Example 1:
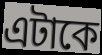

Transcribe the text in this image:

এটাকে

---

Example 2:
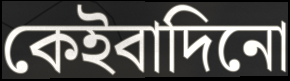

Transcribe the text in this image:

কেইবাদিনো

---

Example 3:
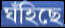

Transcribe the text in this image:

ঘঁহিছে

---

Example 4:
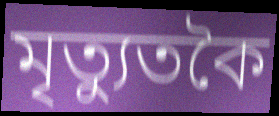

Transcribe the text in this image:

মৃত্যুতকৈ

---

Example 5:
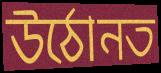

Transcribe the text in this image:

উঠোনত